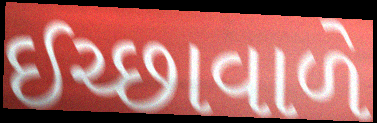
ઈચ્છાવાળે